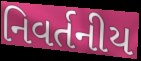
નિવર્તનીય